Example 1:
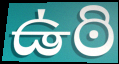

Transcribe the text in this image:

ఉఠి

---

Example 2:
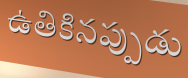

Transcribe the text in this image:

ఉతికినప్పుడు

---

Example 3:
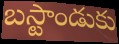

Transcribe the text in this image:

బస్టాండుకు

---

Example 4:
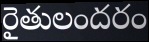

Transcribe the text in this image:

రైతులందరం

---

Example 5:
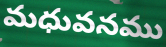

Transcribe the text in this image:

మధువనము